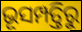
ଭୂସମ୍ପତ୍ତିରୁ